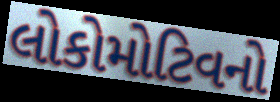
લોકોમોટિવનો